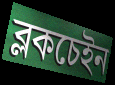
ব্লকচেইন